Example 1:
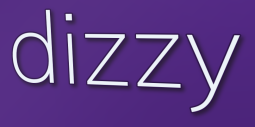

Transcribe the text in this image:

dizzy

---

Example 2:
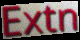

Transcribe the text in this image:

Extn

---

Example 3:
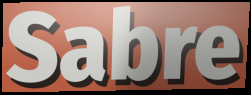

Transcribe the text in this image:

Sabre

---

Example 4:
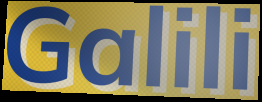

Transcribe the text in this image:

Galili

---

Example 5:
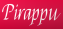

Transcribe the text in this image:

Pirappu